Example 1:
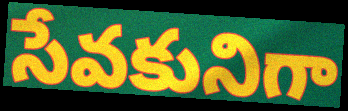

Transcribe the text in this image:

సేవకునిగా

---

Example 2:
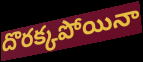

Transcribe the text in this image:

దొరక్కపోయినా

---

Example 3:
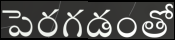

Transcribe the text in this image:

పెరగడంతో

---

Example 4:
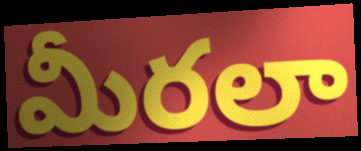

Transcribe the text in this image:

మీరలా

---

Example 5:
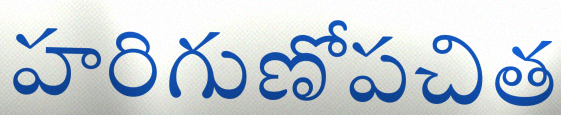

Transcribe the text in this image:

హరిగుణోపచిత